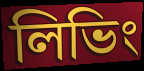
লিভিং